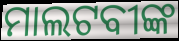
ମାଲଟବୀଙ୍କ